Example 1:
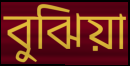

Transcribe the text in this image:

বুঝিয়া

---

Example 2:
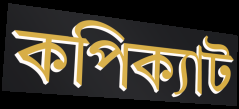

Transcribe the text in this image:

কপিক্যাট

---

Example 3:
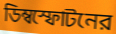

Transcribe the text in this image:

ডিম্বস্ফোটনের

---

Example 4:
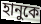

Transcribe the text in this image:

হানুকে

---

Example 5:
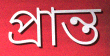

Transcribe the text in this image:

প্রান্ত